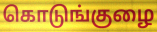
கொடுங்குழை